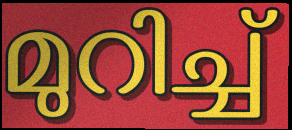
മുറിച്ച്